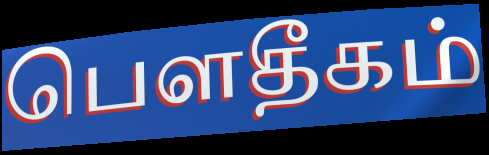
பௌதீகம்